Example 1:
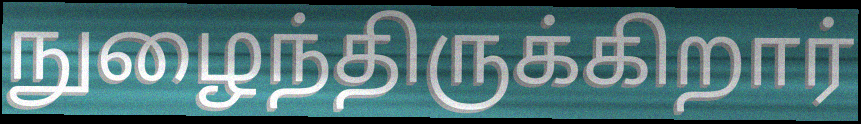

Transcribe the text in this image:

நுழைந்திருக்கிறார்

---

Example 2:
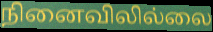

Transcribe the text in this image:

நினைவிலில்லை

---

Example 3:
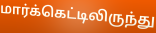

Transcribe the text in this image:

மார்க்கெட்டிலிருந்து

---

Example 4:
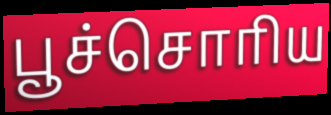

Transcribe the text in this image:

பூச்சொரிய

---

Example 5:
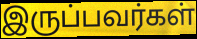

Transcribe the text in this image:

இருப்பவர்கள்